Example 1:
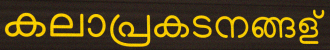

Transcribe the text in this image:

കലാപ്രകടനങ്ങള്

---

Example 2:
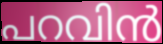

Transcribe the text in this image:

പറവിൻ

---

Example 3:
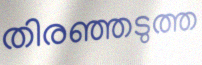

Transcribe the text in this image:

തിരഞ്ഞടുത്ത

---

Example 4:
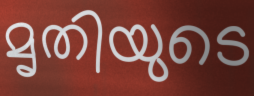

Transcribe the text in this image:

മൃതിയുടെ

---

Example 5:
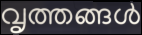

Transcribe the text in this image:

വൃത്തങ്ങൾ